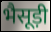
भैसूड़ी